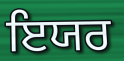
ਇਯਰ